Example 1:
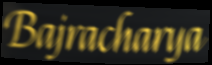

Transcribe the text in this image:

Bajracharya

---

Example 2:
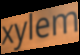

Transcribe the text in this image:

xylem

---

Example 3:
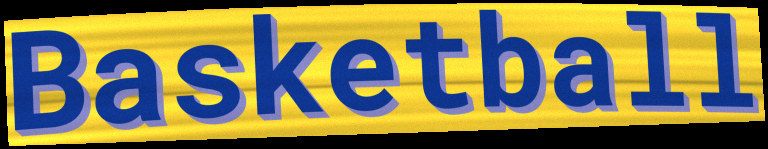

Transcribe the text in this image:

Basketball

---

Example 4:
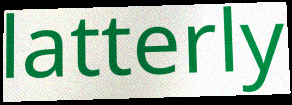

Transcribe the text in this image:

latterly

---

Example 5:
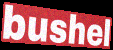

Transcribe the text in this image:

bushel